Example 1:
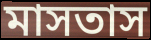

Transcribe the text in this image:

মাসতাস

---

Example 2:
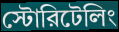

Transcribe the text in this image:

স্টোরিটেলিং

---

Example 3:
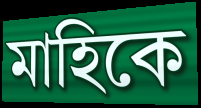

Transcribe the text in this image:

মাহিকে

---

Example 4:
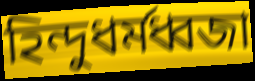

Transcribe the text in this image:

হিন্দুধর্মধ্বজা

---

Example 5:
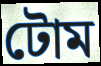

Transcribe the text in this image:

টোম